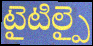
టైటిల్పై